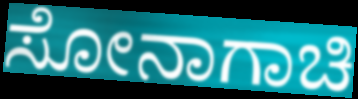
ಸೋನಾಗಾಚಿ